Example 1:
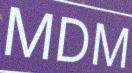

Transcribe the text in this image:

MDM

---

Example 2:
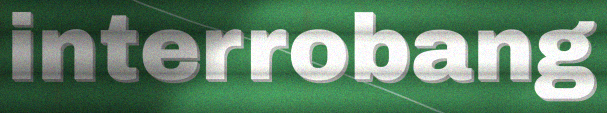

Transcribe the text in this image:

interrobang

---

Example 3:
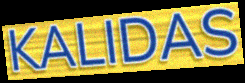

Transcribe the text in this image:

KALIDAS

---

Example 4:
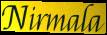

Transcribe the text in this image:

Nirmala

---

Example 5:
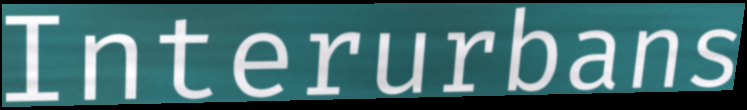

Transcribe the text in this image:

Interurbans